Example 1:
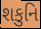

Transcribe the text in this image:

શકુનિ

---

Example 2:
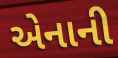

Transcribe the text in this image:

એનાની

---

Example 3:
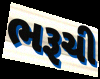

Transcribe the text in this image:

ભરૂચી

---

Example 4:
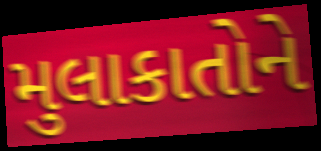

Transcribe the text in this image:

મુલાકાતોને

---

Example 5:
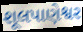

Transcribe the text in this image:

શૂલપાણેશ્વર